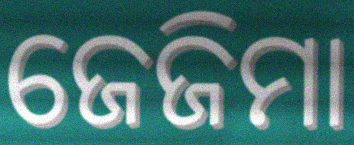
ଜେଜିମା